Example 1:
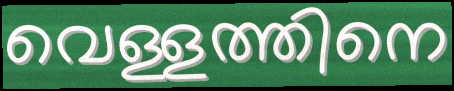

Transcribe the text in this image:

വെള്ളത്തിനെ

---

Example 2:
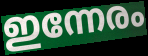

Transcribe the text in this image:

ഇന്നേരം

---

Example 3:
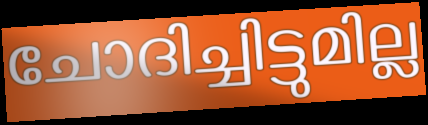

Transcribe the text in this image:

ചോദിച്ചിട്ടുമില്ല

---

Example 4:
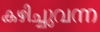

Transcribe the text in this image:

കഴിച്ചുവന്ന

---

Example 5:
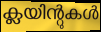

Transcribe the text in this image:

ക്ലയിന്റുകൾ